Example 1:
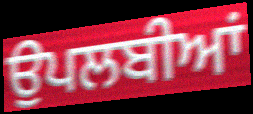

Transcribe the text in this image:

ਉਪਲਬੀਆਂ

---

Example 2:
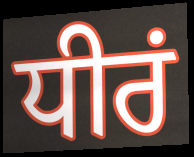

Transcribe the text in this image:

ਧੀਰਂ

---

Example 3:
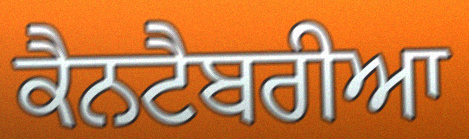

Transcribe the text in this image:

ਕੈਨਟੈਬਰੀਆ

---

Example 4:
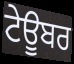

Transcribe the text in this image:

ਟੇਊਬਰ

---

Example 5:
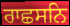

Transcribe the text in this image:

ਰਾਛਸਨਿ